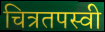
चित्रतपस्वी